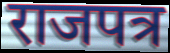
राजपत्र